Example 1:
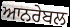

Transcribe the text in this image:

ਆਨਰੇਬਲ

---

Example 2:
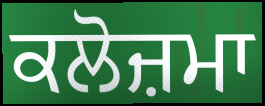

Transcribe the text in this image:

ਕਲੋਜ਼ਮਾ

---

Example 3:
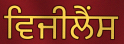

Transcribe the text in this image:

ਵਿਜੀਲੈਂਸ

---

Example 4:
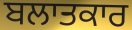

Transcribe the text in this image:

ਬਲਾਤਕਾਰ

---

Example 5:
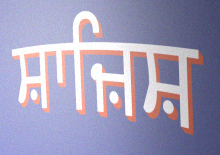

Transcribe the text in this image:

ਸ਼ਾਜ਼ਿਸ਼